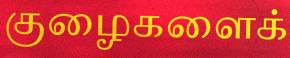
குழைகளைக்